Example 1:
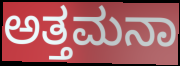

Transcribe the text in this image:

ಅತ್ತಮನಾ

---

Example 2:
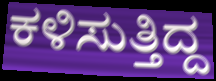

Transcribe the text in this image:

ಕಳಿಸುತ್ತಿದ್ದ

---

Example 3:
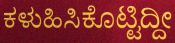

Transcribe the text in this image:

ಕಳುಹಿಸಿಕೊಟ್ಟಿದ್ದೀ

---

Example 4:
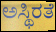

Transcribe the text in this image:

ಅಸ್ಥಿರತೆ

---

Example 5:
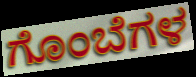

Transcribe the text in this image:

ಗೊಂಬೆಗಳ